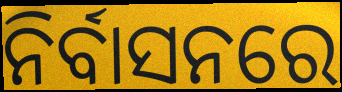
ନିର୍ବାସନରେ